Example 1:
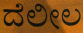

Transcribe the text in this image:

ದೆಲೀಲ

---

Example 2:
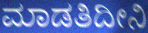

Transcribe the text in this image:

ಮಾಡತಿದೀನಿ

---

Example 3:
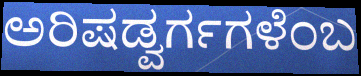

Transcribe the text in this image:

ಅರಿಷಡ್ವರ್ಗಗಳೆಂಬ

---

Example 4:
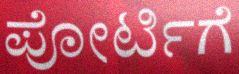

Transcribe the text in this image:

ಪೋರ್ಟಿಗೆ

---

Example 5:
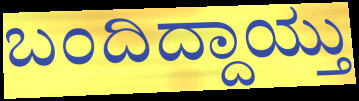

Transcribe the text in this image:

ಬಂದಿದ್ದಾಯ್ತು